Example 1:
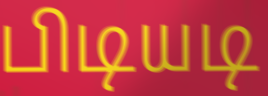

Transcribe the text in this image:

பிடியடி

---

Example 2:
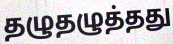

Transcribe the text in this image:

தழுதழுத்தது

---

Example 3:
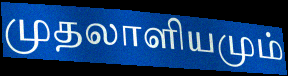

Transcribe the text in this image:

முதலாளியமும்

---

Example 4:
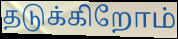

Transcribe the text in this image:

தடுக்கிறோம்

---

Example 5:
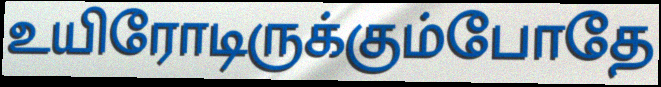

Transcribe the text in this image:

உயிரோடிருக்கும்போதே